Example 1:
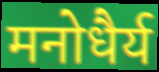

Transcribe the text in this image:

मनोधैर्य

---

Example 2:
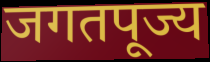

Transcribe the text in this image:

जगतपूज्य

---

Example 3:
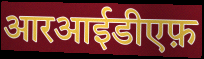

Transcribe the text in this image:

आरआईडीएफ़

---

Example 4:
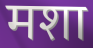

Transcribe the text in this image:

मशा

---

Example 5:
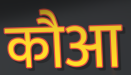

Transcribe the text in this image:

कौआ